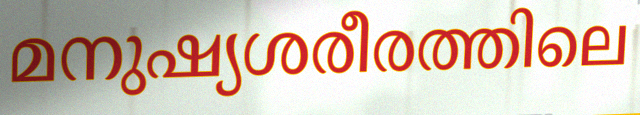
മനുഷ്യശരീരത്തിലെ